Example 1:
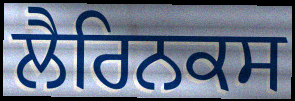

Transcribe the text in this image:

ਲੈਰਿਨਕਸ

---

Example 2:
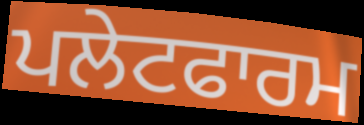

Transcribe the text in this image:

ਪਲੇਟਫਾਰਮ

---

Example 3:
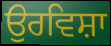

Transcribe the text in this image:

ਉਰਵਿਸ਼ਾ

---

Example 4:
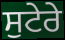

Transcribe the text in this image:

ਸੁਟੇਰੇ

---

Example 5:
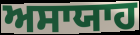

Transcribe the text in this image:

ਅਸਾਯਾਹ